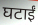
घटाईं